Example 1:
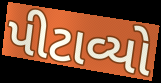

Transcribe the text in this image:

પીટાવ્યો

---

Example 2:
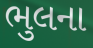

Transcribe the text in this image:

ભુલના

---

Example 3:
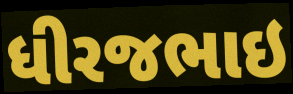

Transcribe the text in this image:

ધીરજભાઇ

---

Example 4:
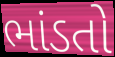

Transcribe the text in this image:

ભાંડતો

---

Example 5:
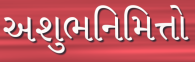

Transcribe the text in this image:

અશુભનિમિત્તો